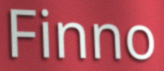
Finno